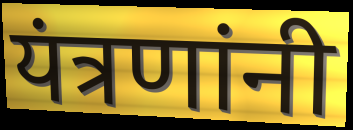
यंत्रणांनी